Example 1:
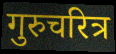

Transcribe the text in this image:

गुरुचरित्र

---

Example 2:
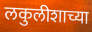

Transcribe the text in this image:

लकुलीशाच्या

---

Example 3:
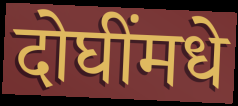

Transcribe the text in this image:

दोघींमधे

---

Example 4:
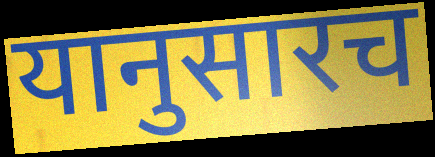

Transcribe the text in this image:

यानुसारच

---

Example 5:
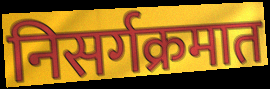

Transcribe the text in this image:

निसर्गक्रमात